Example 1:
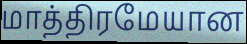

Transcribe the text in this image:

மாத்திரமேயான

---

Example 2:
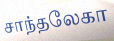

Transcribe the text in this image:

சாந்தலேகா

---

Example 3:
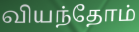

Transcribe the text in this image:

வியந்தோம்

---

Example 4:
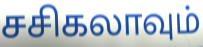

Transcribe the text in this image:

சசிகலாவும்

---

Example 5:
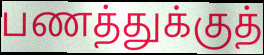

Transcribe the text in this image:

பணத்துக்குத்